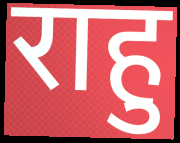
राहु